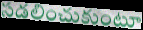
సడలించుకుంటూ